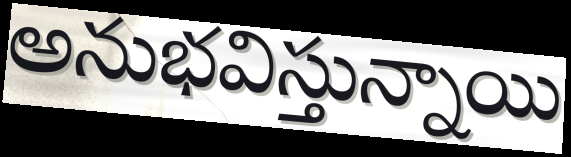
అనుభవిస్తున్నాయి